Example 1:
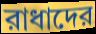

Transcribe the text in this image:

রাধাদের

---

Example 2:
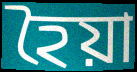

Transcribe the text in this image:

হৈয়া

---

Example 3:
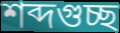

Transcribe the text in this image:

শব্দগুচ্ছ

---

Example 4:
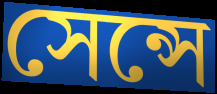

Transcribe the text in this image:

সেন্সে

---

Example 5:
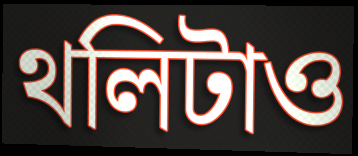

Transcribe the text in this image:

থলিটাও